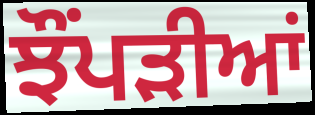
ਝੌਂਪੜੀਆਂ